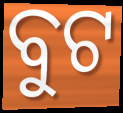
ବୁଟ